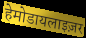
हेमोडायलाइज़र